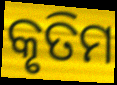
କୃତିମ